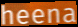
heena